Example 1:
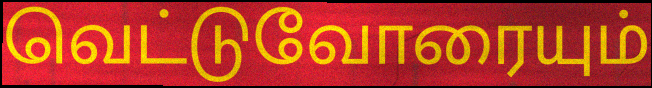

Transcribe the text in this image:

வெட்டுவோரையும்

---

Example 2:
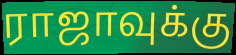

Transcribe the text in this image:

ராஜாவுக்கு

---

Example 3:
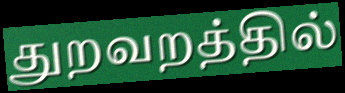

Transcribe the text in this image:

துறவறத்தில்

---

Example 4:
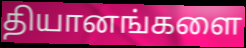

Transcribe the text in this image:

தியானங்களை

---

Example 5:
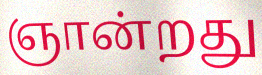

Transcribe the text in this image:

ஞான்றது